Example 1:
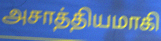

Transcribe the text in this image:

அசாத்தியமாகி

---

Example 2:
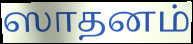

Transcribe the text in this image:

ஸாதனம்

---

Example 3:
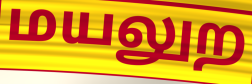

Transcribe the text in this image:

மயலுற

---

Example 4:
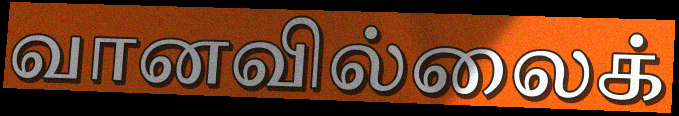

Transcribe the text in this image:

வானவில்லைக்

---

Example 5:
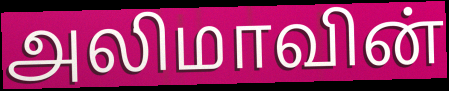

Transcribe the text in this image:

அலிமாவின்